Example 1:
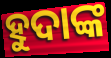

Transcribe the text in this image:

ହୁଦାଙ୍କ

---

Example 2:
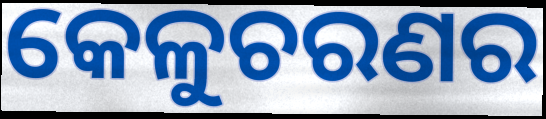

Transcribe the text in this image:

କେଳୁଚରଣର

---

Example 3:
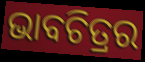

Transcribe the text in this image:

ଭାବଚିତ୍ରର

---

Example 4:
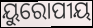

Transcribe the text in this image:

ୟୁରୋପୀୟ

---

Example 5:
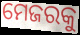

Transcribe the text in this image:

ମେଜରକୁ